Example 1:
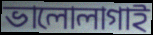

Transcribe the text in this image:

ভালোলাগাই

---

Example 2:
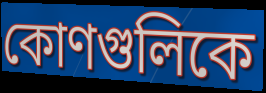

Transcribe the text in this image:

কোণগুলিকে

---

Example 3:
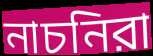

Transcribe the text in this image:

নাচনিরা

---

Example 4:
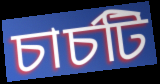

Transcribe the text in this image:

চার্চটি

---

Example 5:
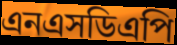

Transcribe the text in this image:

এনএসডিএপি